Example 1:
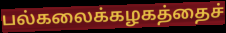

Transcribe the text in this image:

பல்கலைக்கழகத்தைச்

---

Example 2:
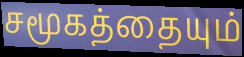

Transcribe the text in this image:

சமூகத்தையும்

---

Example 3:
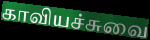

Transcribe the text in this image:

காவியச்சுவை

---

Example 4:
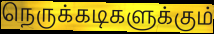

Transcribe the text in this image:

நெருக்கடிகளுக்கும்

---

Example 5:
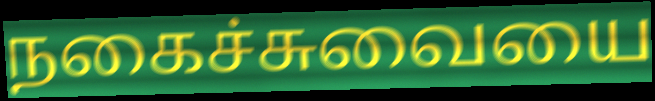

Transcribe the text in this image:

நகைச்சுவையை